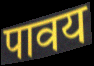
पावय